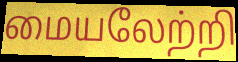
மையலேற்றி